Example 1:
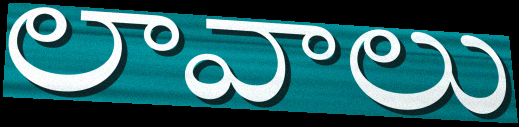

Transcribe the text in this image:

లావాలు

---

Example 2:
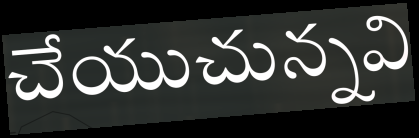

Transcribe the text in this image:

చేయుచున్నవి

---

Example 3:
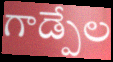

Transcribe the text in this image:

గాడ్పేల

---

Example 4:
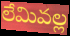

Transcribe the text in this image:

లేమివల్ల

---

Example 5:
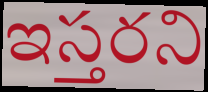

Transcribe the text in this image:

ఇస్తరని